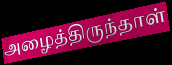
அழைத்திருந்தாள்